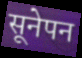
सूनेपन